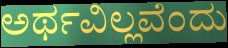
ಅರ್ಥವಿಲ್ಲವೆಂದು